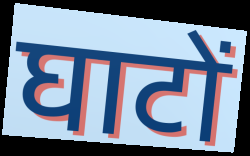
घाटों